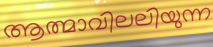
ആത്മാവിലലിയുന്ന